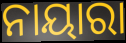
ନାୟାରା